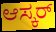
ಆಸ್ಕರ್